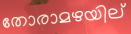
തോരാമഴയില്